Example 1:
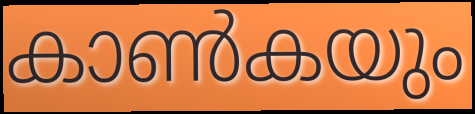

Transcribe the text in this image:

കാൺകയും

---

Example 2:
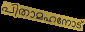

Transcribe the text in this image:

പിതാമഹനോട്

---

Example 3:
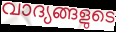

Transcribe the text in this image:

വാദ്യങ്ങളുടെ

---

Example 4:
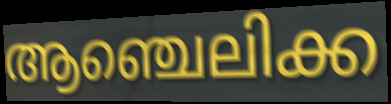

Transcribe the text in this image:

ആഞ്ചെലിക്ക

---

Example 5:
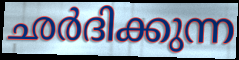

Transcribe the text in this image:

ഛർദിക്കുന്ന